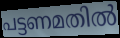
പട്ടണമതിൽ